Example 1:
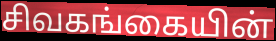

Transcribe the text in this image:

சிவகங்கையின்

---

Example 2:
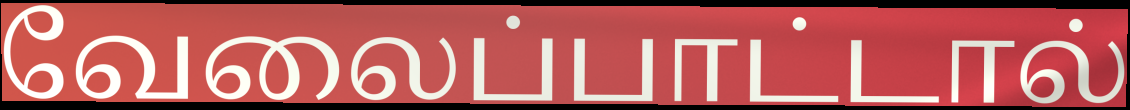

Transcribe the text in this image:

வேலைப்பாட்டால்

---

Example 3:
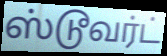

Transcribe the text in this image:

ஸ்டூவர்ட்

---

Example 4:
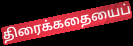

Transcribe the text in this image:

திரைக்கதையைப்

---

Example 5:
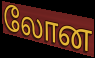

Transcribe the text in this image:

லோன